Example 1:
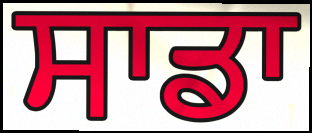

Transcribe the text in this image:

ਸਾਡਾ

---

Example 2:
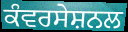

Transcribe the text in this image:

ਕੰਵਰਸੇਸ਼ਨਲ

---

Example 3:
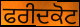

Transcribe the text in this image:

ਫਰੀਦਕੋਟ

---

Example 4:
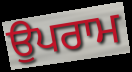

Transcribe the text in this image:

ਉਪਰਾਮ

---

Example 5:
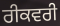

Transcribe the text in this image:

ਰੀਕਵਰੀ